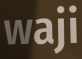
waji